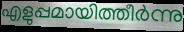
എളുപ്പമായിത്തീർന്നു